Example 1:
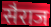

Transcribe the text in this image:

सैराज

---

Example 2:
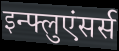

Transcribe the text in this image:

इन्फ्लुएंसर्स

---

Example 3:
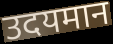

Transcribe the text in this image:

उदयमान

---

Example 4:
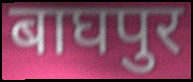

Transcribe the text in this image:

बाघपुर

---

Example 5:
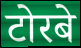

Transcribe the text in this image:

टोरबे